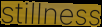
stillness